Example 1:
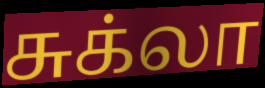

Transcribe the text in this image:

சுக்லா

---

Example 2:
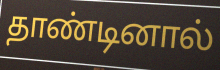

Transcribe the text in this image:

தாண்டினால்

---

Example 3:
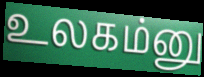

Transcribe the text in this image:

உலகம்னு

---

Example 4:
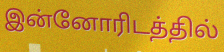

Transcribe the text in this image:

இன்னோரிடத்தில்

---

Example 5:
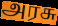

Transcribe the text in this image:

அரசு